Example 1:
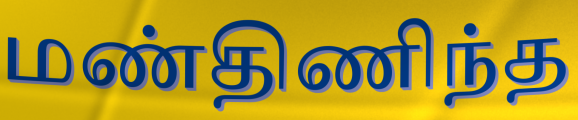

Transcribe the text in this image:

மண்திணிந்த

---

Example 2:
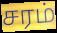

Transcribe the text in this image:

சரம்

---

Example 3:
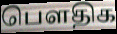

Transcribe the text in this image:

பெளதிக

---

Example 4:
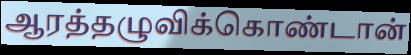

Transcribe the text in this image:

ஆரத்தழுவிக்கொண்டான்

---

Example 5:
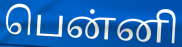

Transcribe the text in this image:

பென்னி